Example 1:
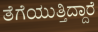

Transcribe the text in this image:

ತೆಗೆಯುತ್ತಿದ್ದಾರೆ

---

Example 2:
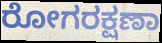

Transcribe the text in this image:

ರೋಗರಕ್ಷಣಾ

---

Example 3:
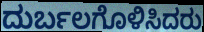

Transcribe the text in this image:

ದುರ್ಬಲಗೊಳಿಸಿದರು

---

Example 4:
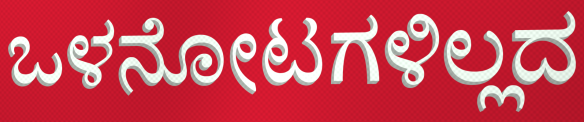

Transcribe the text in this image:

ಒಳನೋಟಗಳಿಲ್ಲದ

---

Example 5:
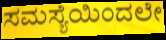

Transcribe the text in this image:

ಸಮಸ್ಯೆಯಿಂದಲೇ